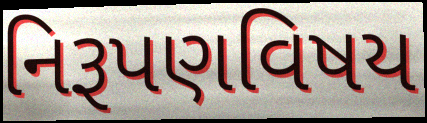
નિરૂપણવિષય